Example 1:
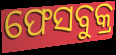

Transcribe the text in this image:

ଫେସବୁକ୍ର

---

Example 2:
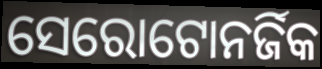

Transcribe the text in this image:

ସେରୋଟୋନର୍ଜିକ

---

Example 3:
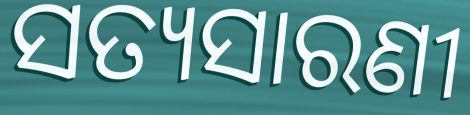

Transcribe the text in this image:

ସତ୍ୟସାରଣୀ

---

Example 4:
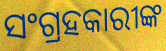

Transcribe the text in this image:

ସଂଗ୍ରହକାରୀଙ୍କ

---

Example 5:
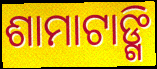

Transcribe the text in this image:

ଶାମାଟାଙ୍ଗି